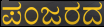
ಪಂಜರದ